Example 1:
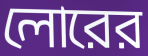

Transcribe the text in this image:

লোরের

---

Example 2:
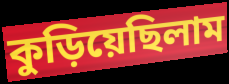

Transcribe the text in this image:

কুড়িয়েছিলাম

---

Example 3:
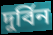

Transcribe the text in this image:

দুর্বিন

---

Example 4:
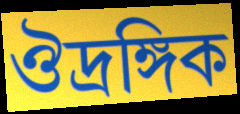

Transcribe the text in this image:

ঔদ্রঙ্গিক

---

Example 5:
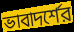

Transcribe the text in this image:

ভাবাদর্শের